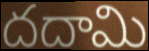
దదామి